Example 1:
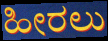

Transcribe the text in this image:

ಹೀರಲು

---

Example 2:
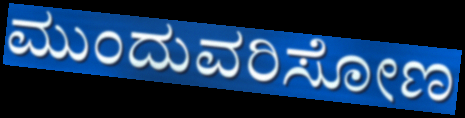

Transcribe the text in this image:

ಮುಂದುವರಿಸೋಣ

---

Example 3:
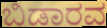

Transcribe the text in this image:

ಬಿಡಾರವ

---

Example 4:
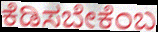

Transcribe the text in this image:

ಕೆಡಿಸಬೇಕೆಂಬ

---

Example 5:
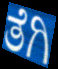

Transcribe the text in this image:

ತೆಗಿ